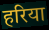
हरिया